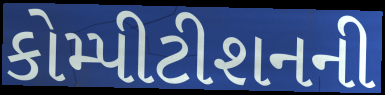
કોમ્પીટીશનની